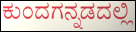
ಕುಂದಗನ್ನಡದಲ್ಲಿ